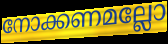
നോക്കണമല്ലോ